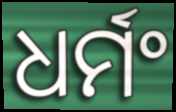
ଧର୍ମଂ